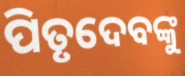
ପିତୃଦେବଙ୍କୁ